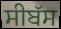
ਸੀਬੱਸ